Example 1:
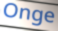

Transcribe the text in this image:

Onge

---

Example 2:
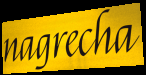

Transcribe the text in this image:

nagrecha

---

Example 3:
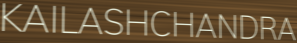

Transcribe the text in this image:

KAILASHCHANDRA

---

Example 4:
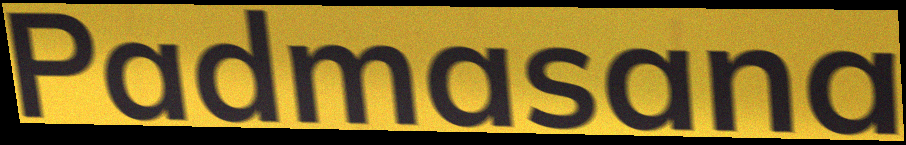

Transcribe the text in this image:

Padmasana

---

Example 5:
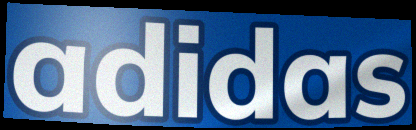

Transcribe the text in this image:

adidas